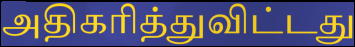
அதிகரித்துவிட்டது